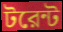
টরেন্ট